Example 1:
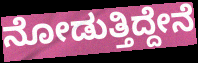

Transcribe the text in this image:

ನೋಡುತ್ತಿದ್ದೇನೆ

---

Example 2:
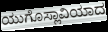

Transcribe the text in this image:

ಯುಗೊಸ್ಲಾವಿಯಾದ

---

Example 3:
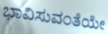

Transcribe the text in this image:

ಭಾವಿಸುವಂತೆಯೇ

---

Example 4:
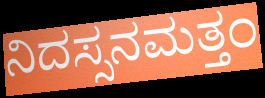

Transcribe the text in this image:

ನಿದಸ್ಸನಮತ್ತಂ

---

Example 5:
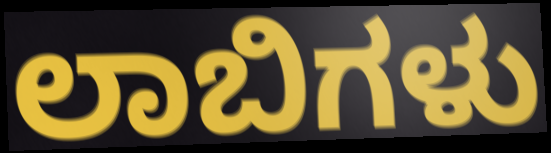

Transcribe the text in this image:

ಲಾಬಿಗಳು